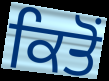
ਕਿਤੋਂ